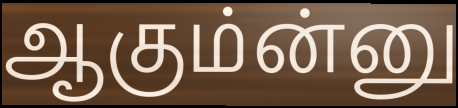
ஆகும்ன்னு